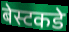
बेस्टकडे